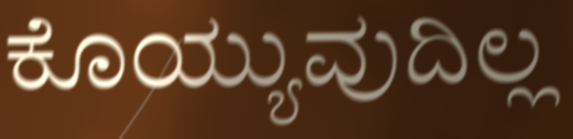
ಕೊಯ್ಯುವುದಿಲ್ಲ